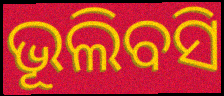
ଭୂଲିବସି